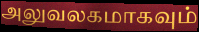
அலுவலகமாகவும்